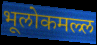
भूलोकमल्ल